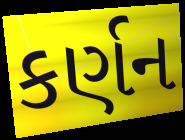
કર્ણન